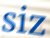
siz